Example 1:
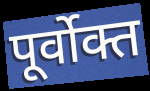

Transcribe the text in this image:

पूर्वोक्त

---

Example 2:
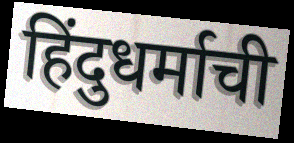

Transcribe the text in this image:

हिंदुधर्माची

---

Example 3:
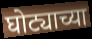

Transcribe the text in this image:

घोट्याच्या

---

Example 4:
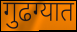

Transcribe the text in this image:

गुढग्यात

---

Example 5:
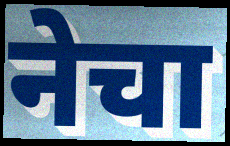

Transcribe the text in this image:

नेचा